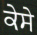
ਕੇਸੇ